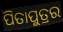
ପିତାପୁତ୍ରର